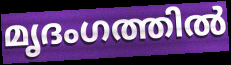
മൃദംഗത്തിൽ